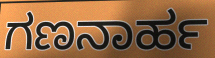
ಗಣನಾರ್ಹ